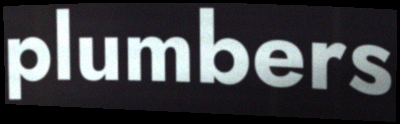
plumbers